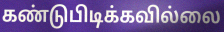
கண்டுபிடிக்கவில்லை